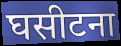
घसीटना